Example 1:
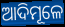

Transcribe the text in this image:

ଆଦିମୂଳେ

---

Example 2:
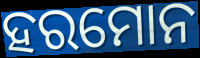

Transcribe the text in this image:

ହରମୋନ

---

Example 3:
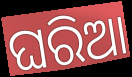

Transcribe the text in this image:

ଘରିଆ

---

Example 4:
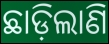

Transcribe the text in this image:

ଛାଡ଼ିଲାଣି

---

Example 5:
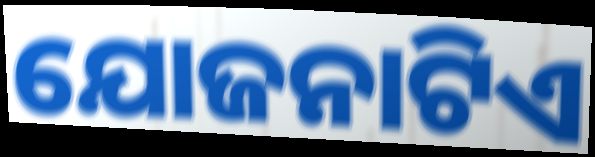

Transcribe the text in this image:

ଯୋଜନାଟିଏ